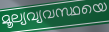
മൂല്യവ്യവസ്ഥയെ